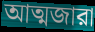
আত্মজারা